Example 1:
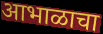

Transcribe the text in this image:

आभाळाचा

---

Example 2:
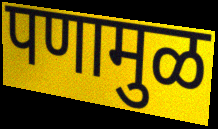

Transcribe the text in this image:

पणामुळ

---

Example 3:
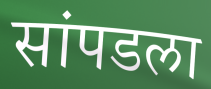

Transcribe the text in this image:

सांपडला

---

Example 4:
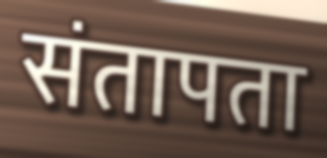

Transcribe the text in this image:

संतापता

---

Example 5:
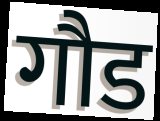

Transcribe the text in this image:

गौड